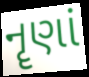
નૄણાં